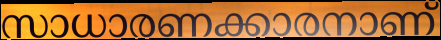
സാധാരണക്കാരനാണ്